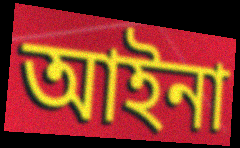
আইনা